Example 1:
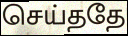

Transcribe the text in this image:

செய்ததே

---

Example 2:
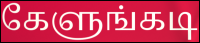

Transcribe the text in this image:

கேளுங்கடி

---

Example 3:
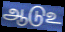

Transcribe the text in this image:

ஆடுஉ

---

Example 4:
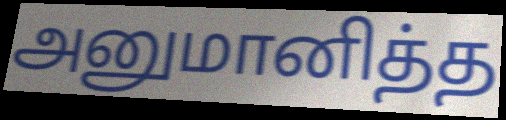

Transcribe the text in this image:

அனுமானித்த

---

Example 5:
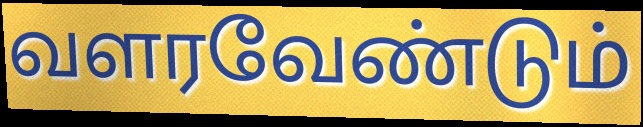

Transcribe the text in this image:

வளரவேண்டும்